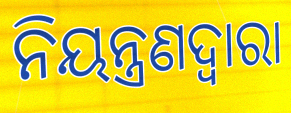
ନିୟନ୍ତ୍ରଣଦ୍ବାରା